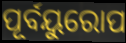
ପୂର୍ବୟୁରୋପ